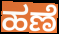
ಹಣೆ